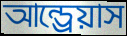
আন্ড্রেয়াস